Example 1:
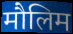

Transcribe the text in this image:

मौलिम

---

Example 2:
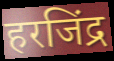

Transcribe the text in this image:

हरजिंद्र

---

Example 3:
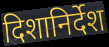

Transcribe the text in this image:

दिशानिर्देश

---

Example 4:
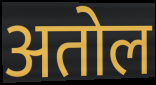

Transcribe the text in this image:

अतोल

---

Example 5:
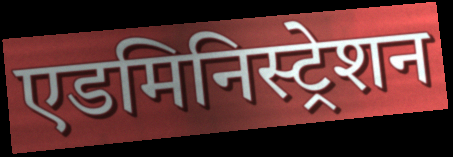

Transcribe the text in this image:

एडमिनिस्‍ट्रेशन